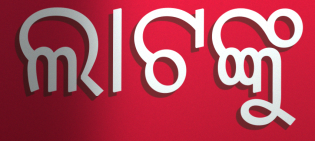
ଲାଟଙ୍କୁ